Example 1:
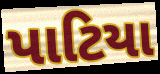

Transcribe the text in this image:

પાટિયા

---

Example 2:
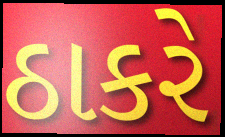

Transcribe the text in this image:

ઠાકરે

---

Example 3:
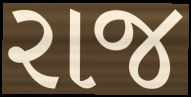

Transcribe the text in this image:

રાજ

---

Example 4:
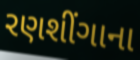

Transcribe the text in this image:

રણશીંગાના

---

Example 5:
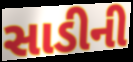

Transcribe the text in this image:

સાડીની